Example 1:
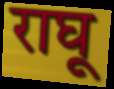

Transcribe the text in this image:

राघू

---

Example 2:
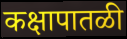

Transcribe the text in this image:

कक्षापातळी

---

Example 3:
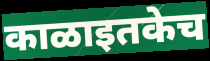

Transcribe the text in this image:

काळाइतकेच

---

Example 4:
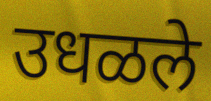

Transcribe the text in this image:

उधळले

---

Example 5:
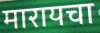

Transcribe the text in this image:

मारायचा